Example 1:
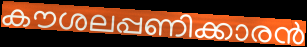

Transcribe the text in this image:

കൗശലപ്പണിക്കാരൻ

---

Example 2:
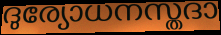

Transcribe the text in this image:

ദുര്യോധനസ്തദാ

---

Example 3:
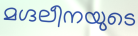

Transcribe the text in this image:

മഗ്ദലീനയുടെ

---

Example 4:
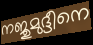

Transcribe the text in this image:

നജുമുദ്ദീനെ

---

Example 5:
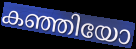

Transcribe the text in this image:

കഞ്ഞിയോ